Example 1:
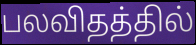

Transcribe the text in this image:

பலவிதத்தில்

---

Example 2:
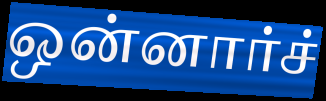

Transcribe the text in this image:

ஒன்னார்ச்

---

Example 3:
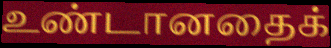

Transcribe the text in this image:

உண்டானதைக்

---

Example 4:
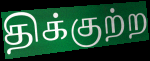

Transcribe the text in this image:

திக்குற்ற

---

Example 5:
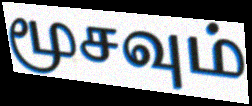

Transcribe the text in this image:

மூசவும்